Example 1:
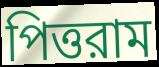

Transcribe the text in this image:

পিত্তরাম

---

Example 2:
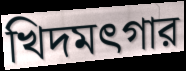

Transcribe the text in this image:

খিদমৎগার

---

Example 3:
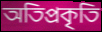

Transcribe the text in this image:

অতিপ্রকৃতি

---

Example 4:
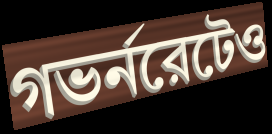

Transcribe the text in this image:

গভর্নরেটেও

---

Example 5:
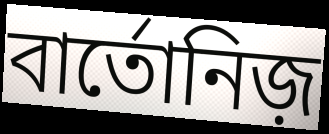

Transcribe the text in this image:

বার্তোনিজ়